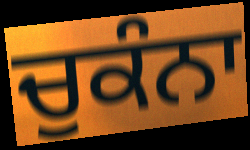
ਚੁਕੰਨਾ